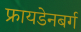
फ्रायडेनबर्ग